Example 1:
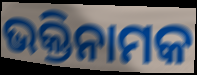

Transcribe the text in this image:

ଭକ୍ତିନାମକ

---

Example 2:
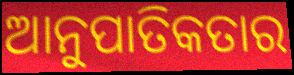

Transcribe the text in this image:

ଆନୁପାତିକତାର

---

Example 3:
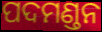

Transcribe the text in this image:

ପଦମଣ୍ଡନ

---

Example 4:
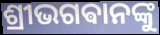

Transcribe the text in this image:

ଶ୍ରୀଭଗଵାନଙ୍କୁ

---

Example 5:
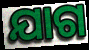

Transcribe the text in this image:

ଯାଗ